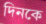
দিনকে